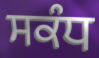
ਸਕੰਧ